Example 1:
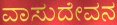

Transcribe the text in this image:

ವಾಸುದೇವನ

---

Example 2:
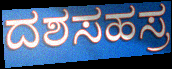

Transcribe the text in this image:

ದಶಸಹಸ್ರ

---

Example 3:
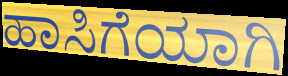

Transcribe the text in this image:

ಹಾಸಿಗೆಯಾಗಿ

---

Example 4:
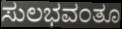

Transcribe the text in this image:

ಸುಲಭವಂತೂ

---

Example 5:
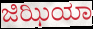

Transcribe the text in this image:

ಜಿಝಿಯಾ